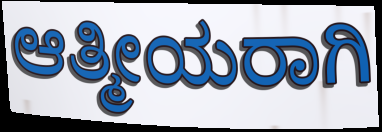
ಆತ್ಮೀಯರಾಗಿ